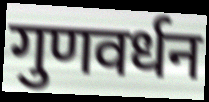
गुणवर्धन